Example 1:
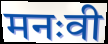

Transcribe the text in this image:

मनःवी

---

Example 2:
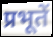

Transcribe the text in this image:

प्रभूतें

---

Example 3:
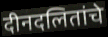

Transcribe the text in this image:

दीनदलितांचे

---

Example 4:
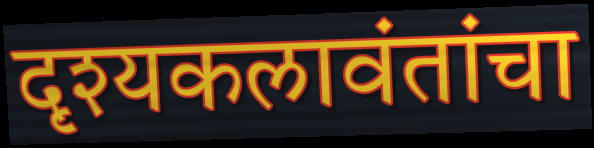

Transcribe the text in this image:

दृश्यकलावंतांचा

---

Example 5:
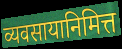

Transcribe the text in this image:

व्यवसायानिमित्त